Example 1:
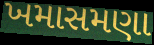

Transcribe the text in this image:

ખમાસમણા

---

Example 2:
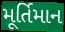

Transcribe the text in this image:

મૂર્તિમાન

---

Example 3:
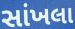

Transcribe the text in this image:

સાંખલા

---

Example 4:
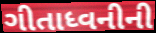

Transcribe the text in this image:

ગીતાધ્વનીની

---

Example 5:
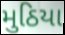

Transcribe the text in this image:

મુઠિયા